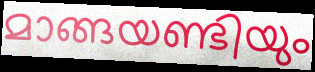
മാങ്ങയണ്ടിയും